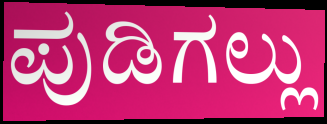
ಪುಡಿಗಲ್ಲು